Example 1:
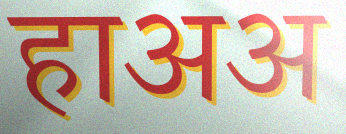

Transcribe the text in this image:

हाअअ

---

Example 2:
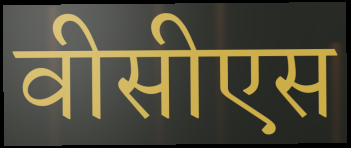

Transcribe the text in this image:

वीसीएस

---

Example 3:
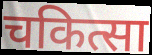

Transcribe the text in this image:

चकित्सा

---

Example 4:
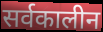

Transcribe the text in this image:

सर्वकालीन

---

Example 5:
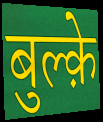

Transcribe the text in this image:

बुल्क़े